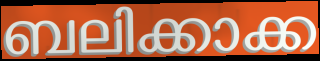
ബലിക്കാക്ക